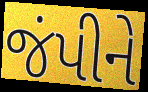
જંપીને